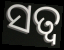
ସତ୍ୱ